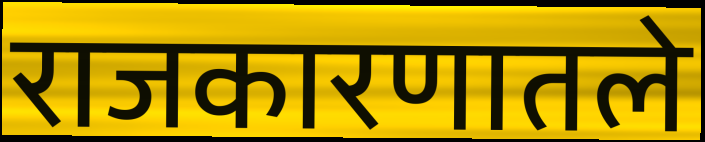
राजकारणातले